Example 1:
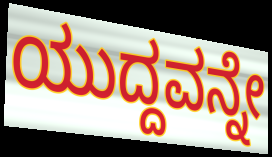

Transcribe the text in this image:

ಯುದ್ದವನ್ನೇ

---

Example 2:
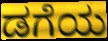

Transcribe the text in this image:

ಡಗೆಯ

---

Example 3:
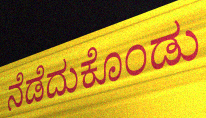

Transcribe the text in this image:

ನೆಡೆದುಕೊಂಡು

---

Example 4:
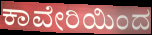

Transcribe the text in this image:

ಕಾವೇರಿಯಿಂದ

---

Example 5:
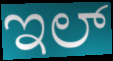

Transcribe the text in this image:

ಇಲ್